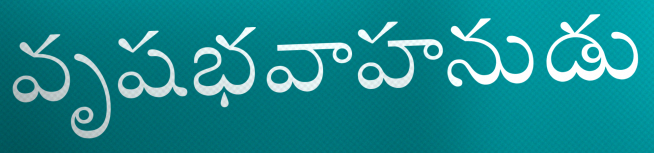
వృషభవాహనుడు